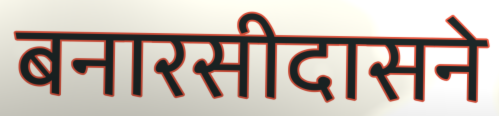
बनारसीदासने